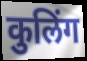
कुलिंग